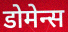
डोमेन्स